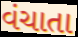
વંચાતા